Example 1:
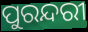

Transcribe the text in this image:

ପୁରନ୍ଦରୀ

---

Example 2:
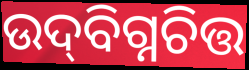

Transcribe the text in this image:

ଉଦ୍‌ବିଗ୍ନଚିତ୍ତ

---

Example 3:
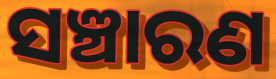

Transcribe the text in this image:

ସଞ୍ଚାରଣ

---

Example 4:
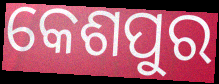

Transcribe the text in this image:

କେଶପୁର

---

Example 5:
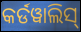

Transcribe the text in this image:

କର୍ଡୱାଲିସ୍